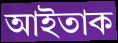
আইতাক